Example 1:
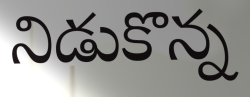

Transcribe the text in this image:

నిడుకొన్న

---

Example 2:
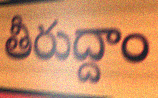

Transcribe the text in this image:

తీరుద్దాం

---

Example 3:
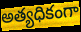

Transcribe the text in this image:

అత్యధికంగా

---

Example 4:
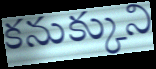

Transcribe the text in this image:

కనుక్కుని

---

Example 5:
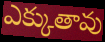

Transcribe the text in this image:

ఎక్కుతావు